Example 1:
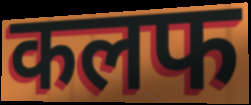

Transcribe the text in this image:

कलफ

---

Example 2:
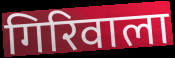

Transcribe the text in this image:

गिरिवाला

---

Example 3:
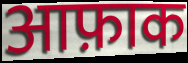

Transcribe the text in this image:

आफ़ाक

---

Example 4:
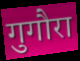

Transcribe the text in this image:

गुगौरा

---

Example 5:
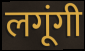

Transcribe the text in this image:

लगूंगी